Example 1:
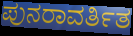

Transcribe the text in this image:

ಪುನರಾವರ್ತಿತ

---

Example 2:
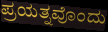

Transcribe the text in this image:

ಪ್ರಯತ್ನವೊಂದು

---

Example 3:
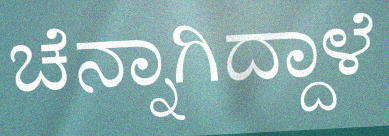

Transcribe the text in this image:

ಚೆನ್ನಾಗಿದ್ದಾಳೆ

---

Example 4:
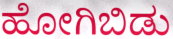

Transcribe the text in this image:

ಹೋಗಿಬಿಡು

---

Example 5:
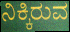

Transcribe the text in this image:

ನಿಕ್ಕಿರುವ